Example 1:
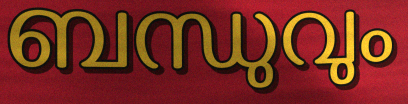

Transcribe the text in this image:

ബന്ധുവും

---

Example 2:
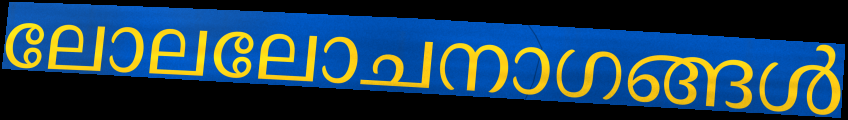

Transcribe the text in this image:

ലോലലോചനാഗങ്ങൾ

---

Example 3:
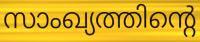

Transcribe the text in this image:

സാംഖ്യത്തിന്റെ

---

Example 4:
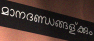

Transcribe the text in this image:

മാനദണ്ഡങ്ങള്ക്കും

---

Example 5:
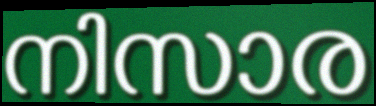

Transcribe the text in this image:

നിസാര